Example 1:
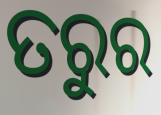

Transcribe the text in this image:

ତରୁର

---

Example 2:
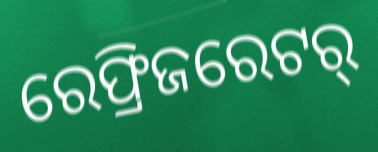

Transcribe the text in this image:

ରେଫ୍ରିଜରେଟର୍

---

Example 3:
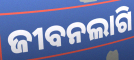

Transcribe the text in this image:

ଜୀବନଲାଗି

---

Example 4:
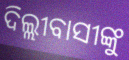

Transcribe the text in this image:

ଦିଲ୍ଲୀବାସୀଙ୍କୁ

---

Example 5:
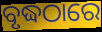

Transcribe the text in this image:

ବୃଦ୍ଧଠାରେ